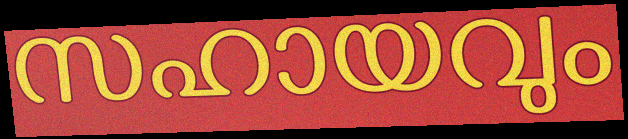
സഹായവും